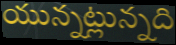
యున్నట్లున్నది